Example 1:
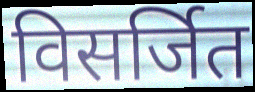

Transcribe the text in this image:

विसर्जित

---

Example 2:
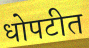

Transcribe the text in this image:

धोपटीत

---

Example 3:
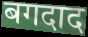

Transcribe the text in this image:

बगदाद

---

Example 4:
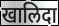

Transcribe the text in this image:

खालिदा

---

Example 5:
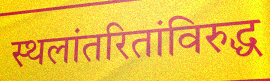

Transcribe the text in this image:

स्थलांतरितांविरुद्ध